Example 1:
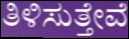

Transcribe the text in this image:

ತಿಳಿಸುತ್ತೇವೆ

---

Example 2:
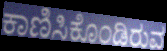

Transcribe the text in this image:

ಕಾಣಿಸಿಕೊಂಡಿರುವ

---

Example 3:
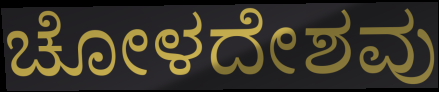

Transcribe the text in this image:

ಚೋಳದೇಶವು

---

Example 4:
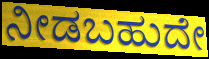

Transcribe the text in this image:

ನೀಡಬಹುದೇ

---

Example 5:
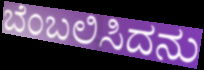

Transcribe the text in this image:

ಬೆಂಬಲಿಸಿದನು